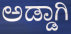
ಅಡ್ಡಾಗಿ